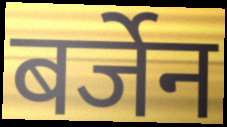
बर्जेन